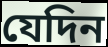
যেদিন